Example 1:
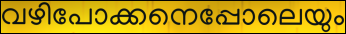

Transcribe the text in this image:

വഴിപോക്കനെപ്പോലെയും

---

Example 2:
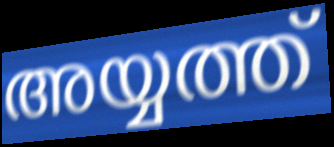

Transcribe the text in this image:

അയ്യത്ത്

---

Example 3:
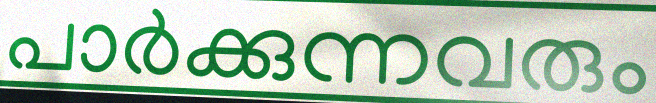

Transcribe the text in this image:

പാർക്കുന്നവരും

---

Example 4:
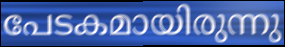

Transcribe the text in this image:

പേടകമായിരുന്നു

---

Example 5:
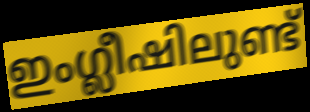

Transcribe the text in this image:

ഇംഗ്ലീഷിലുണ്ട്